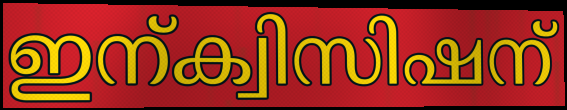
ഇന്ക്വിസിഷന്